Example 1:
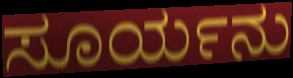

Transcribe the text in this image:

ಸೂರ್ಯನು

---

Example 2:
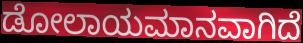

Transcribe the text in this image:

ಡೋಲಾಯಮಾನವಾಗಿದೆ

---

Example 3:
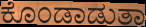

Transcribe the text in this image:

ಕೊಂಡಾಡುತಾ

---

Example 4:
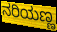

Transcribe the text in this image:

ನರಿಯಣ್ಣ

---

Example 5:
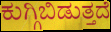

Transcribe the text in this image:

ಕುಗ್ಗಿಬಿಡುತ್ತದೆ